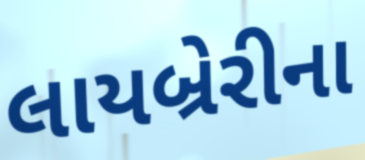
લાયબ્રેરીના